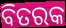
ବିତରକ